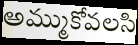
అమ్ముకోవలసి